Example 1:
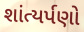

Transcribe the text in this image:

શાંત્યર્પણો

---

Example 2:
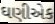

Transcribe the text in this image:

ઘણીએક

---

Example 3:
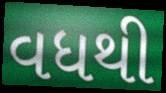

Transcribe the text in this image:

વધથી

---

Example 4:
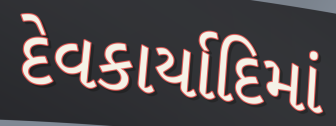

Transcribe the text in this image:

દેવકાર્યાદિમાં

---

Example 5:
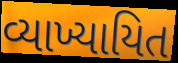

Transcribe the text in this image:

વ્યાખ્યાયિત